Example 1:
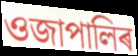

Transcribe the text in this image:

ওজাপালিৰ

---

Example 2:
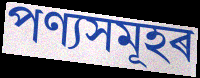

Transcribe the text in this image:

পণ্যসমূহৰ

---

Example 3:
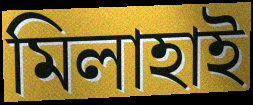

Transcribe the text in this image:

মিলাহাই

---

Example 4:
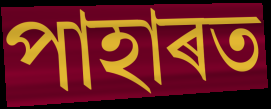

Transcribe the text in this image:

পাহাৰত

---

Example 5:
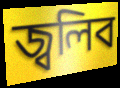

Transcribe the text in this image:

জ্বলিব